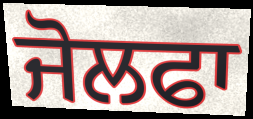
ਜੋਲਫਾ